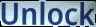
Unlock